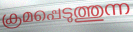
ക്രമപ്പെടുത്തുന്ന